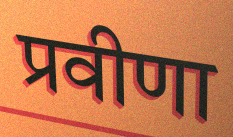
प्रवीणा